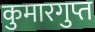
कुमारगुप्त